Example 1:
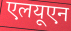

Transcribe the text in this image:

एलयूएन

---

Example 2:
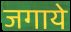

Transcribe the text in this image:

जगाये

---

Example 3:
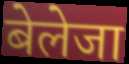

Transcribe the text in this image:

बेलेजा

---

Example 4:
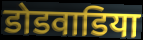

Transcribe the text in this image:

डोडवाडिया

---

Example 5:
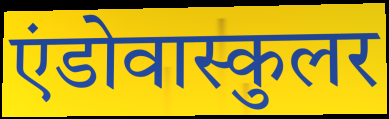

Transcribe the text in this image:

एंडोवास्कुलर